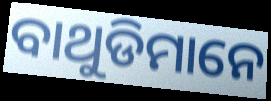
ବାଥୁଡିମାନେ